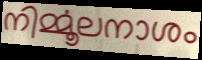
നിൎമ്മൂലനാശം